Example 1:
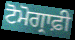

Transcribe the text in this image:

ਟੋਮੋਗ੍ਰਾਫ਼ੀ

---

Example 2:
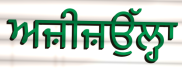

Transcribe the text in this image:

ਅਜ਼ੀਜ਼ਉੱਲ੍ਹਾ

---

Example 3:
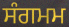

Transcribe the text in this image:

ਸੰਗਮਮ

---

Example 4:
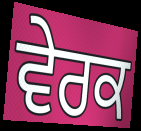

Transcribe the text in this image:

ਵੇਰਕ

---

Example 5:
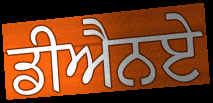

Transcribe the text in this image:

ਡੀਐਨਏ